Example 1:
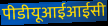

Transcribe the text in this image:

पीडीयूआईआईसी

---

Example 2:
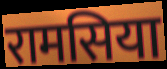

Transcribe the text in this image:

रामसिया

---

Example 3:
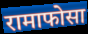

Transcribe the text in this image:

रामाफोसा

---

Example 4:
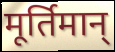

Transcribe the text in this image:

मूर्तिमान्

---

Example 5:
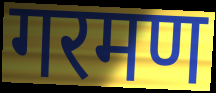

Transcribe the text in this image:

गरमण